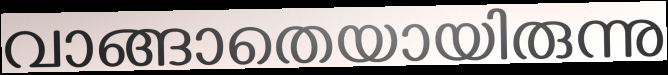
വാങ്ങാതെയായിരുന്നു